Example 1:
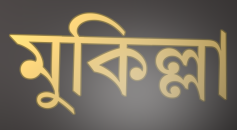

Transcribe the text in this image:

মুকিল্লা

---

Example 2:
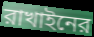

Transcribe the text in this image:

রাখাইনের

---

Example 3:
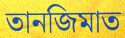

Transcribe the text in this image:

তানজিমাত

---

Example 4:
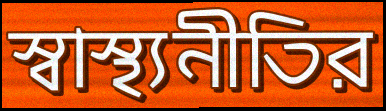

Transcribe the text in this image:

স্বাস্থ্যনীতির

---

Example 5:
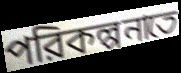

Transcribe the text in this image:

পরিকল্পনাতে